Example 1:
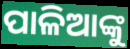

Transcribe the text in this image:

ପାଳିଆଙ୍କୁ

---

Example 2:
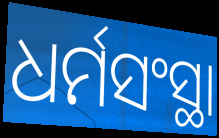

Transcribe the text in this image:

ଧର୍ମସଂସ୍ଥା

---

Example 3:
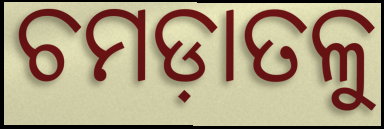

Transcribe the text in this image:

ଚମଡ଼ାତଳୁ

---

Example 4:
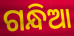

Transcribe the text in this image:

ଗନ୍ଧିଆ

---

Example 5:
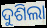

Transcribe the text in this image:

ଦୁଶିଲା